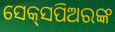
ସେକ୍‌ସପିଅରଙ୍କ